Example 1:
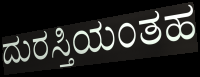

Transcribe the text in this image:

ದುರಸ್ತಿಯಂತಹ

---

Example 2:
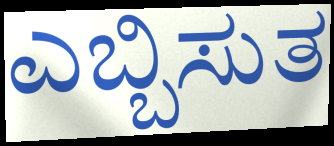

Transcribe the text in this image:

ಎಬ್ಬಿಸುತ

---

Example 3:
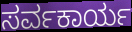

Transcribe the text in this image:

ಸರ್ವಕಾರ್ಯ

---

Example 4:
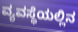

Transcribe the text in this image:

ವ್ಯವಸ್ಥೆಯಲ್ಲಿನ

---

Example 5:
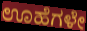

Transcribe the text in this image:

ಊಹೆಗಳೇ